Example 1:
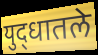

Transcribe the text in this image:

युद्धातले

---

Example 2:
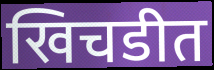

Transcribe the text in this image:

खिचडीत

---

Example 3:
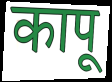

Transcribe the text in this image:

कापू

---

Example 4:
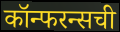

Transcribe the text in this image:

कॉन्फरन्सची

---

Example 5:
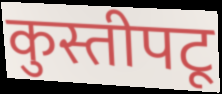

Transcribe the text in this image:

कुस्तीपटू